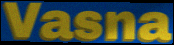
Vasna